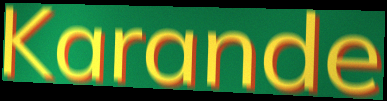
Karande